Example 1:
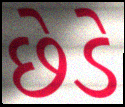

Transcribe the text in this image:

છેડે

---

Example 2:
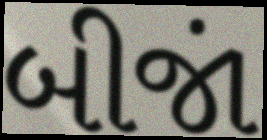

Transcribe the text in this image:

બીજાં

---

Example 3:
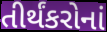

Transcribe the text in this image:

તીર્થંકરોનાં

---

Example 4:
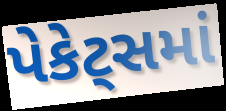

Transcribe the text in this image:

પેકેટ્સમાં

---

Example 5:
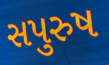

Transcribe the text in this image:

સપુરુષ